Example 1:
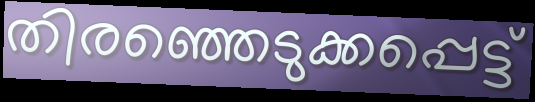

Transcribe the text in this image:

തിരഞ്ഞെടുക്കപ്പെട്ട്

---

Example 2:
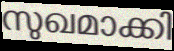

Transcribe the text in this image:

സുഖമാക്കി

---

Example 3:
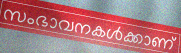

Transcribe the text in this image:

സംഭാവനകൾക്കാണ്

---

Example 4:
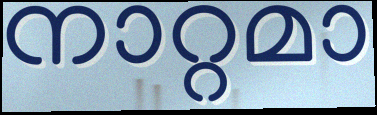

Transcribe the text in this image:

നാറ്റമാ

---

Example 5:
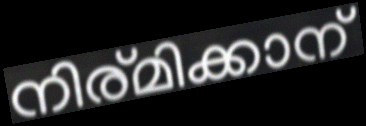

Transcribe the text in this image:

നിര്മിക്കാന്